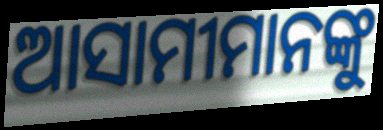
ଆସାମୀମାନଙ୍କୁ